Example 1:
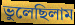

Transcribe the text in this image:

ভুলেছিলাম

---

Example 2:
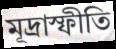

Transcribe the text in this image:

মূদ্রাস্ফীতি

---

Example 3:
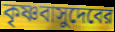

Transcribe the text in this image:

কৃষ্ণবাসুদেবের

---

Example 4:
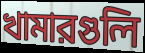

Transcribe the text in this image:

খামারগুলি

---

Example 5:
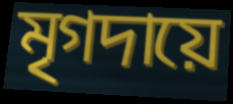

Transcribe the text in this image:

মৃগদায়ে